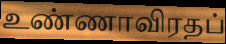
உண்ணாவிரதப்